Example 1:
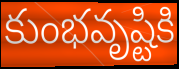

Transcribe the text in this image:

కుంభవృష్టికి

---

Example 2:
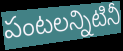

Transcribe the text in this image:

పంటలన్నిటినీ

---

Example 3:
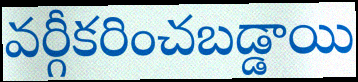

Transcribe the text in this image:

వర్గీకరించబడ్డాయి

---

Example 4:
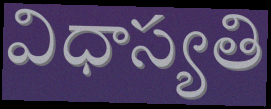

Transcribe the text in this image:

విధాస్యతి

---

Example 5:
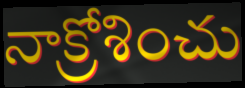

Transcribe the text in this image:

నాక్రోశించు